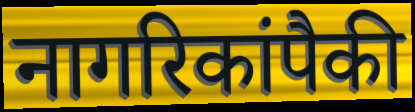
नागरिकांपैकी